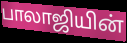
பாலாஜியின்